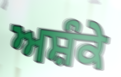
ਅਸ਼ੰਕੇ